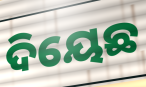
ଦିୟେଛ